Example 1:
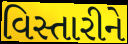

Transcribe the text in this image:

વિસ્તારીને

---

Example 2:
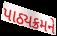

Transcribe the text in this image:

પાઠ્યક્રમને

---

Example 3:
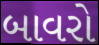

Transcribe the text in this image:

બાવરો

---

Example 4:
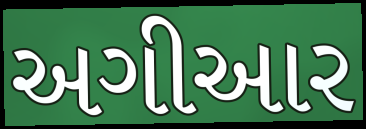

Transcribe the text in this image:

અગીઆર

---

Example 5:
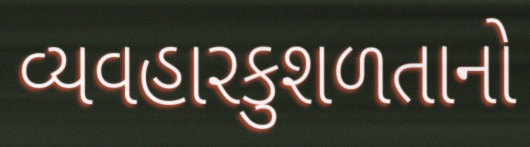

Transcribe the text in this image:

વ્યવહારકુશળતાનો